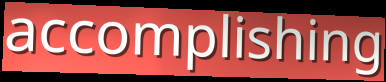
accomplishing